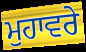
ਮੁਹਾਵਰੇ